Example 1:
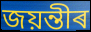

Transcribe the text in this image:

জয়ন্তীৰ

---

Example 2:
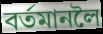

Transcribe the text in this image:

বৰ্তমানলৈ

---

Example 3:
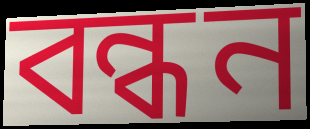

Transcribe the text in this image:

বন্ধন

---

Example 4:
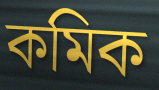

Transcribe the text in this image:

কমিক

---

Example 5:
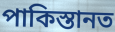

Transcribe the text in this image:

পাকিস্তানত